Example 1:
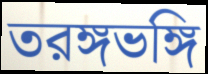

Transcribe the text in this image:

তরঙ্গভঙ্গি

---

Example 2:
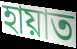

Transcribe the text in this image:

হায়াত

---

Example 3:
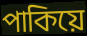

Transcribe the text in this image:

পাকিয়ে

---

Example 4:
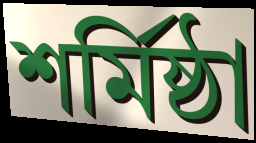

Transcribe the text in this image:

শর্মিষ্ঠা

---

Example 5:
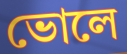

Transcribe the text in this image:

ভোলে